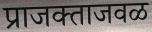
प्राजक्ताजवळ